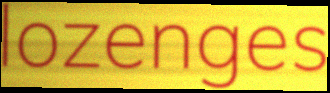
lozenges